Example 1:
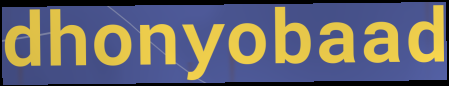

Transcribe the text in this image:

dhonyobaad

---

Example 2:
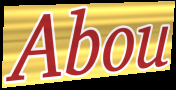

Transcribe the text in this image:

Abou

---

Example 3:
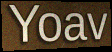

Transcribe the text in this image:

Yoav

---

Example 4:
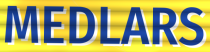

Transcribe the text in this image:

MEDLARS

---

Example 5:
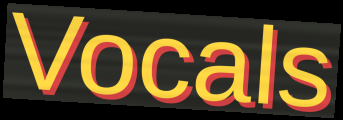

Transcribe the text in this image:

Vocals